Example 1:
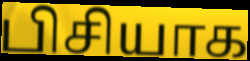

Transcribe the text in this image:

பிசியாக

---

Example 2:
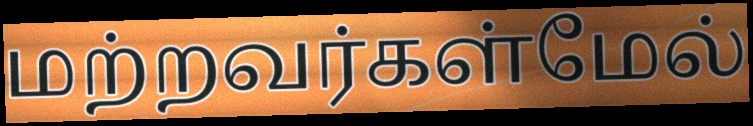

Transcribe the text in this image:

மற்றவர்கள்மேல்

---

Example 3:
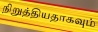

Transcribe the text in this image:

நிறுத்தியதாகவும்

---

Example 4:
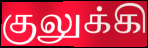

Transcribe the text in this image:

குலுக்கி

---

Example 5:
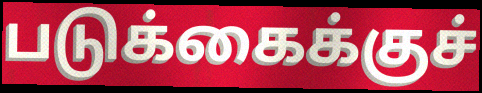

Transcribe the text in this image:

படுக்கைக்குச்